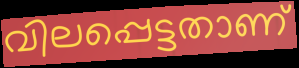
വിലപ്പെട്ടതാണ്